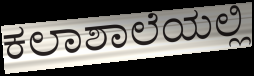
ಕಲಾಶಾಲೆಯಲ್ಲಿ